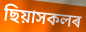
ছিয়াসকলৰ